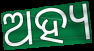
ଅହ୍ୟ